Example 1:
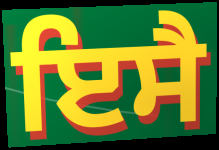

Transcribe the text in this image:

ਇਸੈ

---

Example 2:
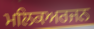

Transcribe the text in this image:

ਮਲਿਕਅਰਜਨ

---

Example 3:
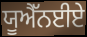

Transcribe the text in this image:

ਯੂਐੱਨਈਏ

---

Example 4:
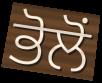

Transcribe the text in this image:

ਭੋਲੋਂ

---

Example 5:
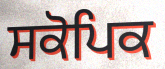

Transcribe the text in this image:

ਸਕੋਪਿਕ